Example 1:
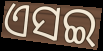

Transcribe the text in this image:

ଏସଇ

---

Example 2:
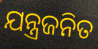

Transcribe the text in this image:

ଯନ୍ତ୍ରଜନିତ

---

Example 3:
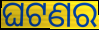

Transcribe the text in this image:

ଘଟଣର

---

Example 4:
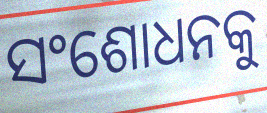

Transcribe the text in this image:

ସଂଶୋଧନକୁ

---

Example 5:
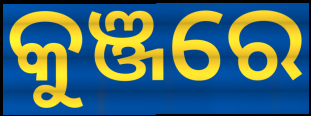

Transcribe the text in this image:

କୁଞ୍ଜରେ